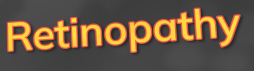
Retinopathy